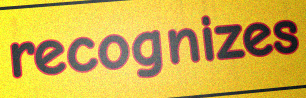
recognizes